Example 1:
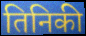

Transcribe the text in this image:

तिनिकी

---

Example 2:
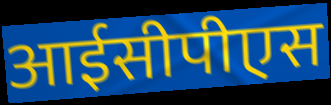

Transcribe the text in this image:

आईसीपीएस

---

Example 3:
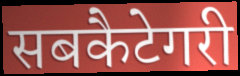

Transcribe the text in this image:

सबकैटेगरी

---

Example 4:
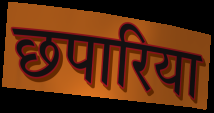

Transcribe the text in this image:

छपारिया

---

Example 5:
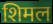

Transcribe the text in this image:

शिमल